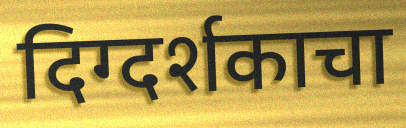
दिग्दर्शकाचा